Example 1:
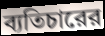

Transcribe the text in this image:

ব্যতিচারের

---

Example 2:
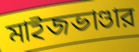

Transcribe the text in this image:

মাইজভাণ্ডার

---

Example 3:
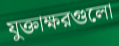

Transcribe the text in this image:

যুক্তাক্ষরগুলো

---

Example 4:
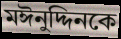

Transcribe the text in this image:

মঈনুদ্দিনকে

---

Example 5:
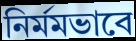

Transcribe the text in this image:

নির্মমভাবে